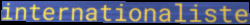
internationaliste